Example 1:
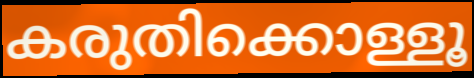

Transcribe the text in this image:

കരുതിക്കൊള്ളൂ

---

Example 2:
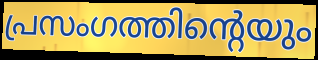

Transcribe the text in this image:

പ്രസംഗത്തിന്റെയും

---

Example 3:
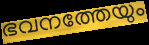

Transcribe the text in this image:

ഭവനത്തേയും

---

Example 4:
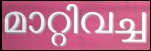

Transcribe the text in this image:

മാറ്റിവച്ച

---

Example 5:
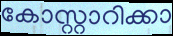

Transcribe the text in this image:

കോസ്റ്റാറിക്കാ